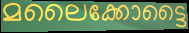
മലൈക്കോട്ടൈ